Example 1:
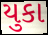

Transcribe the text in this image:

યુકા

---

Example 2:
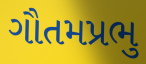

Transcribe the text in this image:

ગૌતમપ્રભુ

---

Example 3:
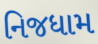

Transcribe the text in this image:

નિજધામ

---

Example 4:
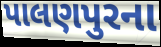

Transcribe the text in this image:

પાલણપુરના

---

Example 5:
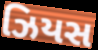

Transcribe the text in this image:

ઝિયસ